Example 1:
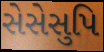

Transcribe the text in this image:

સેસેસુપિ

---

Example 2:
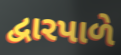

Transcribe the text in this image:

દ્વારપાળે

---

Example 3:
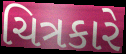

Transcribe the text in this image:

ચિત્રકારે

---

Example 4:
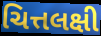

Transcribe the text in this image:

ચિત્તલક્ષી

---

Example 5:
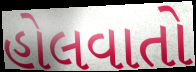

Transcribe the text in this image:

હોલવાતો